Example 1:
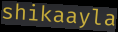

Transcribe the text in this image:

shikaayla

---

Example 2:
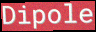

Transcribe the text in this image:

Dipole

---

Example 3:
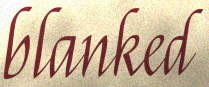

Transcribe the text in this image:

blanked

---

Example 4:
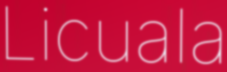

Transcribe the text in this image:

Licuala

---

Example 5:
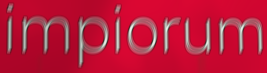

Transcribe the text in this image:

impiorum